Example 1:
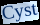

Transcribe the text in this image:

Cyst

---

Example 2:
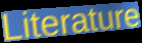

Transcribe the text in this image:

Literature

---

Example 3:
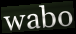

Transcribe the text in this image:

wabo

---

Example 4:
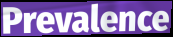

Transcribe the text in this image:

Prevalence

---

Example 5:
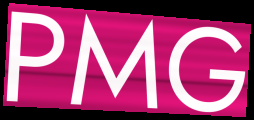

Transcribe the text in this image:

PMG